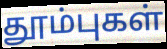
தூம்புகள்